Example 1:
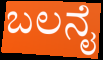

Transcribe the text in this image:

ಬಲನೈ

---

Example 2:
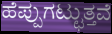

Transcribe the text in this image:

ಹೆಪ್ಪುಗಟ್ಟುತ್ತವೆ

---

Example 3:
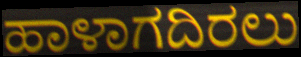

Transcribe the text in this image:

ಹಾಳಾಗದಿರಲು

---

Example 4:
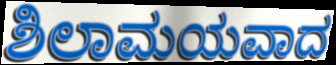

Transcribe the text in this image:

ಶಿಲಾಮಯವಾದ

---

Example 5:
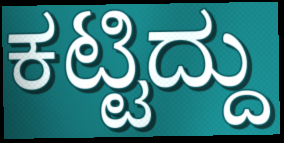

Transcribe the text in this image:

ಕಟ್ಟಿದ್ದು